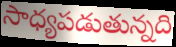
సాధ్యపడుతున్నది